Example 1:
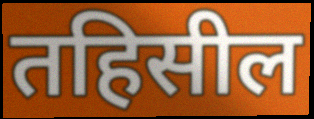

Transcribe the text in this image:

तहिसील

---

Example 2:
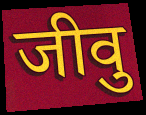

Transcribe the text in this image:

जीवु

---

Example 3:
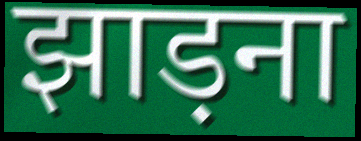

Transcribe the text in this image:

झाड़ना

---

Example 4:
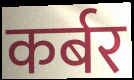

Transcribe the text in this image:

कर्बर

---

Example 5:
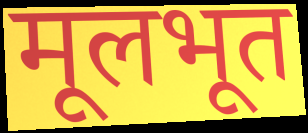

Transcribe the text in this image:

मूलभूत